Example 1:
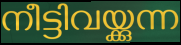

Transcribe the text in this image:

നീട്ടിവയ്ക്കുന്ന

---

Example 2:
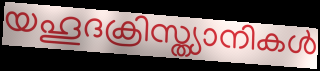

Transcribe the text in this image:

യഹൂദക്രിസ്ത്യാനികൾ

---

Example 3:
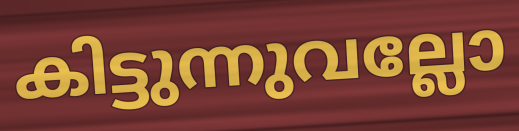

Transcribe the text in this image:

കിട്ടുന്നുവല്ലോ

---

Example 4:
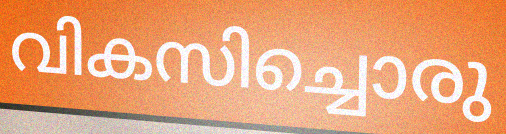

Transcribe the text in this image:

വികസിച്ചൊരു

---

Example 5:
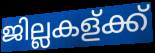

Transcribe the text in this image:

ജില്ലകള്ക്ക്